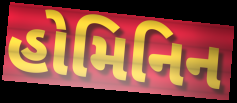
હોમિનિન